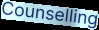
Counselling